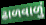
ઢાળવાળું